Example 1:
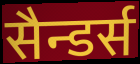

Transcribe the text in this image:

सैन्डर्स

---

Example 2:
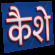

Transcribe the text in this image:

कैशे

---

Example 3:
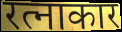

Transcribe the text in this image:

रत्नाकार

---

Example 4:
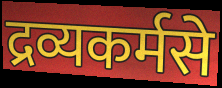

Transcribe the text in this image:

द्रव्यकर्मसे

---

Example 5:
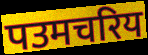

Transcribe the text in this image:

पउमचरिय